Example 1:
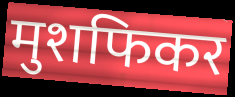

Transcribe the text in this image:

मुशफिकर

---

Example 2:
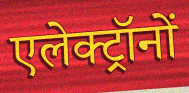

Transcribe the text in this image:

एलेक्ट्रॉनों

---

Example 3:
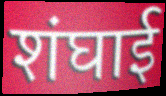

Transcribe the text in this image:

शंघाई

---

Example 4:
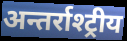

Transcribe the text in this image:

अन्तर्राश्ट्रीय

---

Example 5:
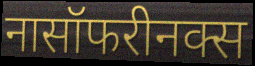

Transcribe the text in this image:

नासॉफरीनक्स